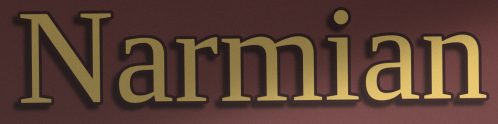
Narmian